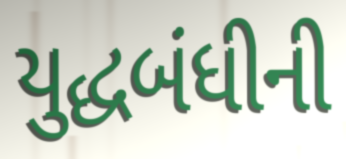
યુદ્ધબંધીની